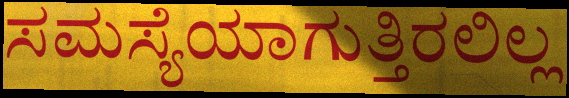
ಸಮಸ್ಯೆಯಾಗುತ್ತಿರಲಿಲ್ಲ